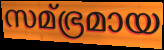
സമ്ഭ്രമായ